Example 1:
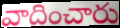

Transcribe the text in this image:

వాదించారు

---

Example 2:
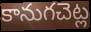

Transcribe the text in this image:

కానుగచెట్ల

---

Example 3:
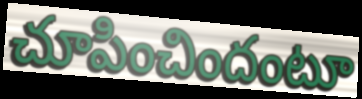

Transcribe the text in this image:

చూపించిందంటూ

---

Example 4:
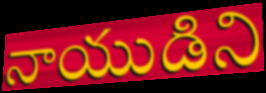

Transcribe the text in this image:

నాయుడిని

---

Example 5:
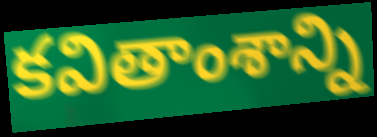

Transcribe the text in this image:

కవితాంశాన్ని